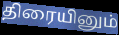
திரையினும்